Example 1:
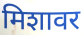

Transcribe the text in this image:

मिशावर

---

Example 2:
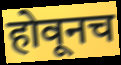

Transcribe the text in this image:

होवूनच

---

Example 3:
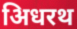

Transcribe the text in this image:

अिधरथ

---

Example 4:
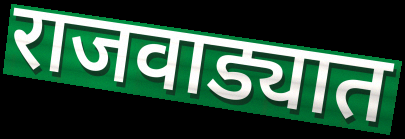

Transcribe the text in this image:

राजवाड्यात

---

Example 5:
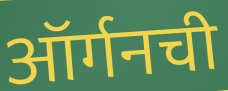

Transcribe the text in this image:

ऑर्गनची